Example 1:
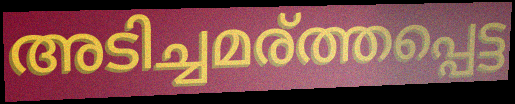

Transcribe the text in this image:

അടിച്ചമര്ത്തപ്പെട്ട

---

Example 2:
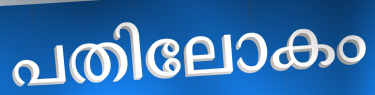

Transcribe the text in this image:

പതിലോകം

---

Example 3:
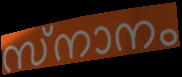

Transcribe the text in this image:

സ്‌നാനം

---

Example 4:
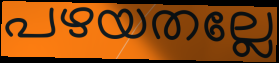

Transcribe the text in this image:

പഴയതല്ലേ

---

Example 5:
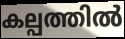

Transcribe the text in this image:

കല്പത്തിൽ